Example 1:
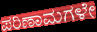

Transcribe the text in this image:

ಪರಿಣಾಮಗಳೇ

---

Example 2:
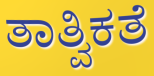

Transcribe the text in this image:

ತಾತ್ವಿಕತೆ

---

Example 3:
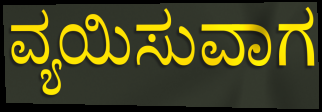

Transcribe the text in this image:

ವ್ಯಯಿಸುವಾಗ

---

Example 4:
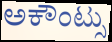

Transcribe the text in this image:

ಅಕೌಂಟ್ಸು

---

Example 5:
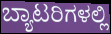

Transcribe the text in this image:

ಬ್ಯಾಟರಿಗಳಲ್ಲಿ